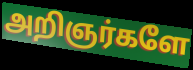
அறிஞர்களே